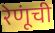
रेणूंची